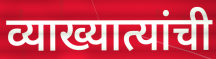
व्याख्यात्यांची